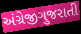
અંગ્રેજીગુજરાતી